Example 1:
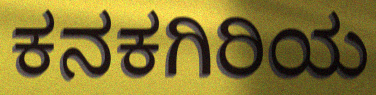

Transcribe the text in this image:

ಕನಕಗಿರಿಯ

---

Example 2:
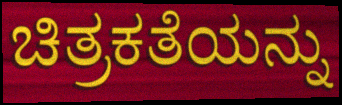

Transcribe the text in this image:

ಚಿತ್ರಕತೆಯನ್ನು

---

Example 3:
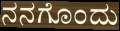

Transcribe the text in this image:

ನನಗೊಂದು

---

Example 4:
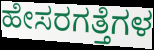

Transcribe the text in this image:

ಹೇಸರಗತ್ತೆಗಳ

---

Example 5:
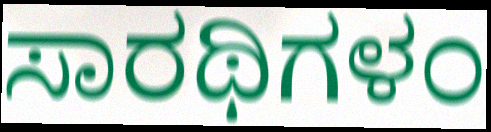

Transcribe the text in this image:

ಸಾರಥಿಗಳಂ